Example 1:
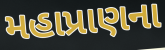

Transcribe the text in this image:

મહાપ્રાણના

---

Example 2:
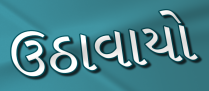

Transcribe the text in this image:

ઉઠાવાયો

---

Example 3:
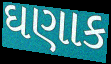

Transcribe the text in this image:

ઘણાક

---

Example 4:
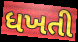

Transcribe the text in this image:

ધખતી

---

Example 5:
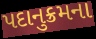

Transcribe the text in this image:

પદાનુક્રમના